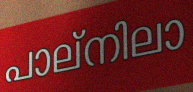
പാല്നിലാ